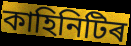
কাহিনিটিৰ